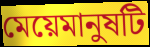
মেয়েমানুষটি